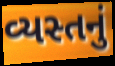
વ્યસ્તનું